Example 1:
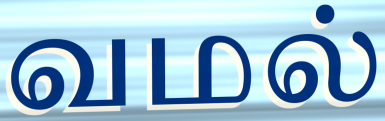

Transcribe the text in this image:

வமல்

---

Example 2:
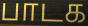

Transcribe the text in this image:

பாடக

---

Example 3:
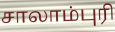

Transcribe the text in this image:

சாலாம்புரி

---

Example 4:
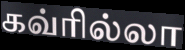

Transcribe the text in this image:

கவ்ரில்லா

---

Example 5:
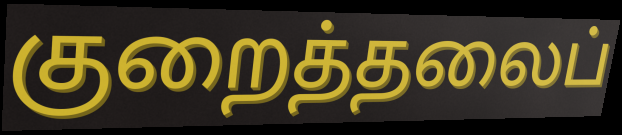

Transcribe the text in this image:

குறைத்தலைப்